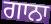
ਗਾਨਾ